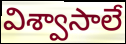
విశ్వాసాలే